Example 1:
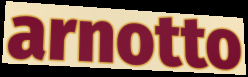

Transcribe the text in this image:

arnotto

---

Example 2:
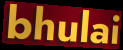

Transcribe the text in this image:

bhulai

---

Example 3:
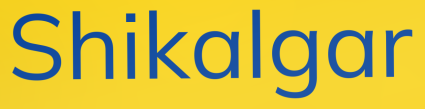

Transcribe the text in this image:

Shikalgar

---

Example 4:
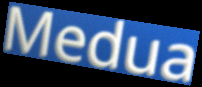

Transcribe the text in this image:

Medua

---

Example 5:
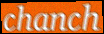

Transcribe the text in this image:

chanch